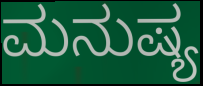
ಮನುಷ್ಯ